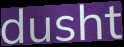
dusht